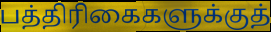
பத்திரிகைகளுக்குத்